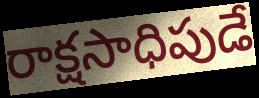
రాక్షసాధిపుడే